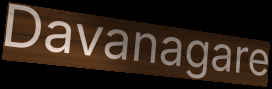
Davanagare